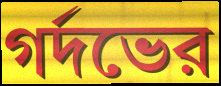
গর্দভের